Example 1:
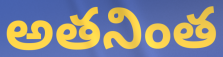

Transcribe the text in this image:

అతనింత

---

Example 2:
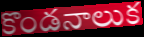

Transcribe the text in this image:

కొండనాలుక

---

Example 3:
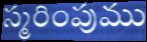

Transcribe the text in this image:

స్మరింపుము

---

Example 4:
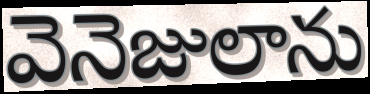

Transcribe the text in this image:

వెనెజులాను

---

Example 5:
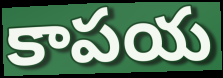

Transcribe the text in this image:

కాపయ